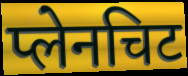
प्लेनचिट